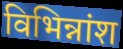
विभिन्नांश